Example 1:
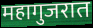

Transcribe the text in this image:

महागुजरात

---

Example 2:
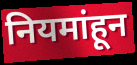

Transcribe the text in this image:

नियमांहून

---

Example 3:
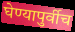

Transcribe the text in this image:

घेण्यापुर्वीच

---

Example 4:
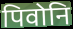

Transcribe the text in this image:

पिवोनि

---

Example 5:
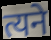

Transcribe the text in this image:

त्यने